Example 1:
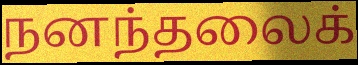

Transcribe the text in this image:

நனந்தலைக்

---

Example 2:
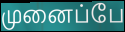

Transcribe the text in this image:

முனைப்பே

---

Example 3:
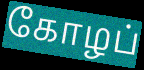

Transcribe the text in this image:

கோழப்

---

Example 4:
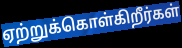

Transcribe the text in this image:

ஏற்றுக்கொள்கிறீர்கள்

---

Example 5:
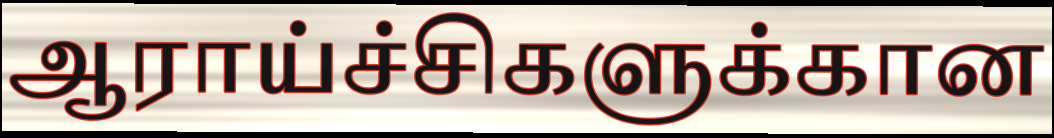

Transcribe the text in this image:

ஆராய்ச்சிகளுக்கான